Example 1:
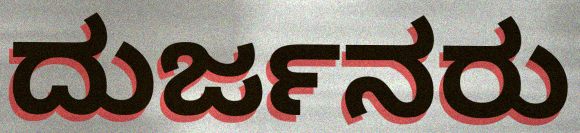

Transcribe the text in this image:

ದುರ್ಜನರು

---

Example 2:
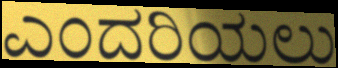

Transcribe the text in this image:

ಎಂದರಿಯಲು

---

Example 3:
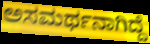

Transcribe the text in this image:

ಅಸಮರ್ಥನಾಗಿದ್ದೆ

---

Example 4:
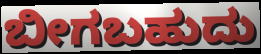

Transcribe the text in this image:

ಬೀಗಬಹುದು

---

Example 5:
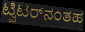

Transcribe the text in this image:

ಟ್ವಿಟರ್‌ನಂತಹ